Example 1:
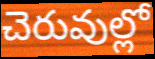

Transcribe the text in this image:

చెరువుల్లో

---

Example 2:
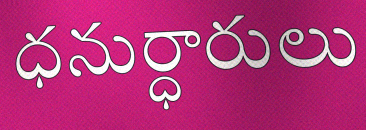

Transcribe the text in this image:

ధనుర్ధారులు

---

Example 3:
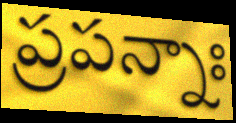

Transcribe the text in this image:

ప్రపన్నాః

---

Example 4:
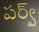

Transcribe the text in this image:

పర్వ్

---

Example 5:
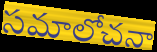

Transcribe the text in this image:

సమాలోచనా